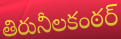
తిరునీలకంఠర్